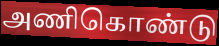
அணிகொண்டு